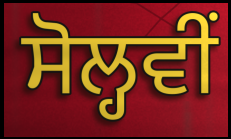
ਸੋਲ੍ਹਵੀਂ